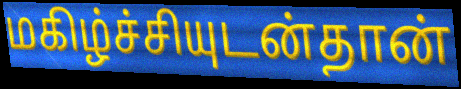
மகிழ்ச்சியுடன்தான்